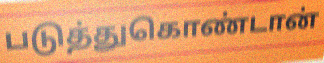
படுத்துகொண்டான்